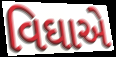
વિઘાએ